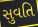
સુવતિ